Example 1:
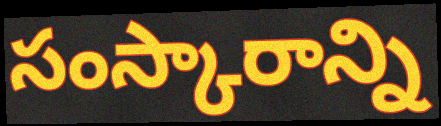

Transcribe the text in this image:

సంస్కారాన్ని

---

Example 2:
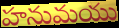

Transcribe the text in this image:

హనుమయు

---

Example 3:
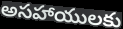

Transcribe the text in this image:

అసహాయులకు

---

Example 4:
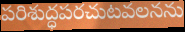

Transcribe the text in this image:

పరిశుద్ధపరచుటవలనను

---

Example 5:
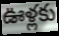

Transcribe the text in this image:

ఊళ్లకు